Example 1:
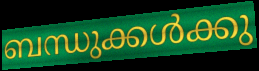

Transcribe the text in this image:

ബന്ധുക്കൾക്കു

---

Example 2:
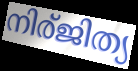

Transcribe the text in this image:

നിര്ജിത്യ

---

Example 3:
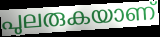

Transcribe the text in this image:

പുലരുകയാണ്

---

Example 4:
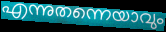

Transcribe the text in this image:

എന്നുതന്നെയാവും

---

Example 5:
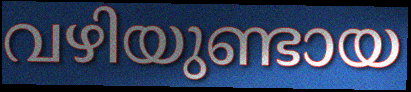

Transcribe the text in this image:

വഴിയുണ്ടായ